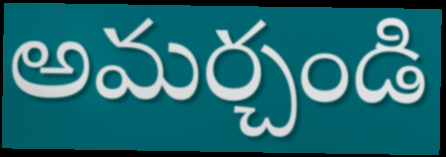
అమర్చండి